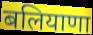
बलियाणा